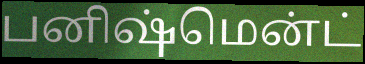
பனிஷ்மென்ட்